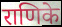
राणिके